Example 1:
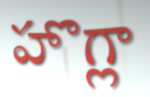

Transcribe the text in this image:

హొగ్లా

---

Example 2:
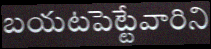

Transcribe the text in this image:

బయటపెట్టేవారిని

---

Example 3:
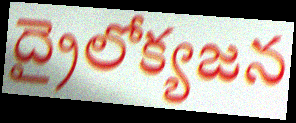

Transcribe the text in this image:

ద్రైలోక్యజన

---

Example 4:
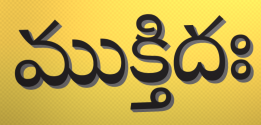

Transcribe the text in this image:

ముక్తిదః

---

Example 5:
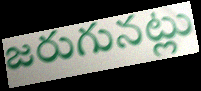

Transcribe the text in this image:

జరుగునట్లు